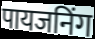
पायजनिंग